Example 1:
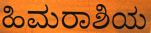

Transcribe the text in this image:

ಹಿಮರಾಶಿಯ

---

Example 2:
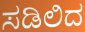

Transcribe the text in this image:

ಸಡಿಲಿದ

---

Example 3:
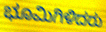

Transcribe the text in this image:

ಭೂಮಿಗಿಳಿದರು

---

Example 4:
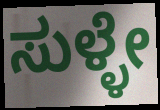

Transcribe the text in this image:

ಸುಳ್ಳೇ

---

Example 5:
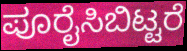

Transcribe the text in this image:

ಪೂರೈಸಿಬಿಟ್ಟರೆ